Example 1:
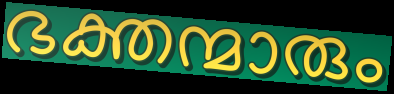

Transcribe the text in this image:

ഭക്തന്മാരും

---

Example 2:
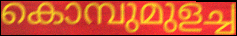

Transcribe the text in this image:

കൊമ്പുമുളച്ച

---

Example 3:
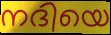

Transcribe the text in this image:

നദിയെ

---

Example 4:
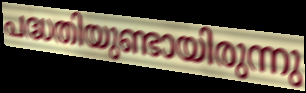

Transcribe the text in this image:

പദ്ധതിയുണ്ടായിരുന്നു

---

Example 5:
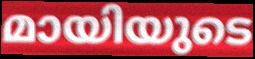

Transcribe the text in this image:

മായിയുടെ